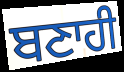
ਬਣਾਹੀ